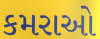
કમરાઓ